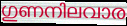
ഗുണനിലവാര